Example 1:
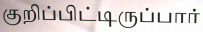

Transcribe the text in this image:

குறிப்பிட்டிருப்பார்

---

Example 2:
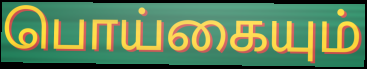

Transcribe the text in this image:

பொய்கையும்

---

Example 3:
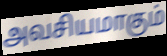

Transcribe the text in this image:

அவசியமாகும்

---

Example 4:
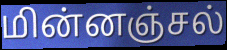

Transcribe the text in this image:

மின்னஞ்சல்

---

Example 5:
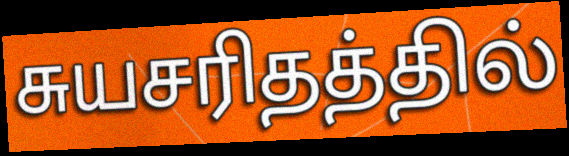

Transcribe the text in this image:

சுயசரிதத்தில்